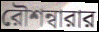
রৌশন্বারার